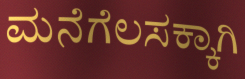
ಮನೆಗೆಲಸಕ್ಕಾಗಿ